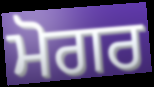
ਮੋਗਰ